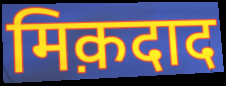
मिक़दाद